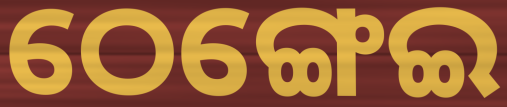
ଠେଙ୍ଗେଇ